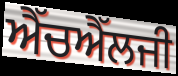
ਐੱਚਐੱਲਜੀ